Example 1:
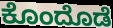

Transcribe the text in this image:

ಕೊಂದೊಡೆ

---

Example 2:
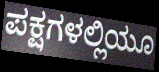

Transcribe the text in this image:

ಪಕ್ಷಗಳಲ್ಲಿಯೂ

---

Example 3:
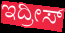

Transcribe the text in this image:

ಇದ್ರೀಸ್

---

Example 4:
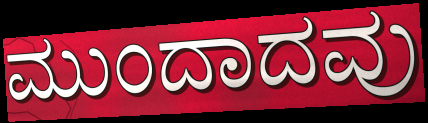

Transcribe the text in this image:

ಮುಂದಾದವು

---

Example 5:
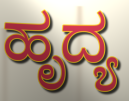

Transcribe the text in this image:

ಹೃದ್ಯ